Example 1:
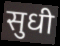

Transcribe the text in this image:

सुधी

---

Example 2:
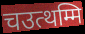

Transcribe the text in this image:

चउत्थम्मि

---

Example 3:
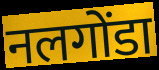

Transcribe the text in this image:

नलगोंडा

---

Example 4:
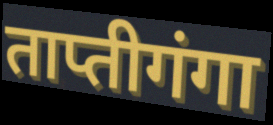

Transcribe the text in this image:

ताप्तीगंगा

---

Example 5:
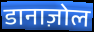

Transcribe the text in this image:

डानाज़ोल